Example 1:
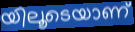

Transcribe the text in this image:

യിലൂടെയാണ്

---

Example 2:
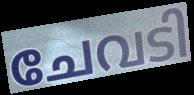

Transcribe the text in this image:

ചേവടി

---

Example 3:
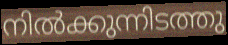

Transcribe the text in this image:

നിൽക്കുന്നിടത്തു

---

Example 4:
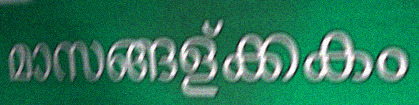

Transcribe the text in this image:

മാസങ്ങള്ക്കകം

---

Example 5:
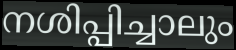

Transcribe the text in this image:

നശിപ്പിച്ചാലും